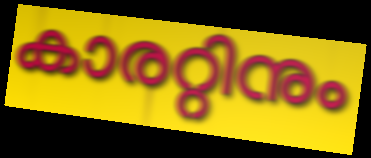
കാരറ്റിനും